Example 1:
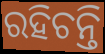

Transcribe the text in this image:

ରହିଚନ୍ତି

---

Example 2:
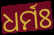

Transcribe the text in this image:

ଧର୍ମଃ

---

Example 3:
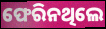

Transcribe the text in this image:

ଫେରିନଥିଲେ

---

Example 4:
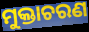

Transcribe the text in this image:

ମୁକ୍ତାଚରଣ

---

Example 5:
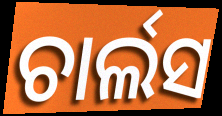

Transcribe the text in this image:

ଚାର୍ଲସ